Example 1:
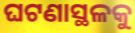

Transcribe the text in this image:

ଘଟଣାସ୍ଥଳକୁ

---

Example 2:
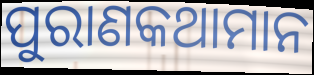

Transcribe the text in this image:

ପୁରାଣକଥାମାନ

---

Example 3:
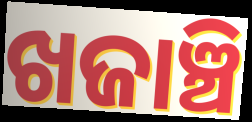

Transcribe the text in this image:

ଖଜାଞ୍ଚି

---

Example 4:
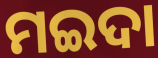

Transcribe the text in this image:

ମଇଦା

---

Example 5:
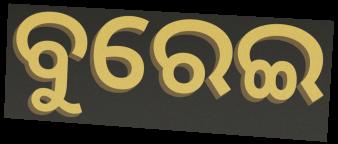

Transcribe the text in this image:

ବୁରେଇ